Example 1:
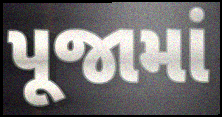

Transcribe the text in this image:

પૂજામાં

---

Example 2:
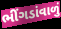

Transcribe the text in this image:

ભીંગડાંવાળું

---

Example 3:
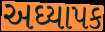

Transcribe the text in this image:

અઘ્યાપક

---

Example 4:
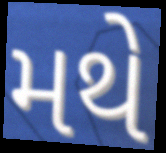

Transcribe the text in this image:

મથે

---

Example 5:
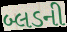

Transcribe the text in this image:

બ્લડની